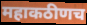
महाकठीणच